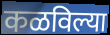
कळविल्या